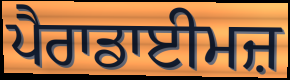
ਪੈਰਾਡਾਈਮਜ਼